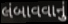
લંબાવવાનું